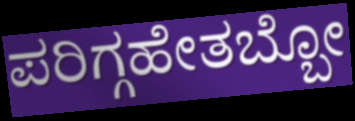
ಪರಿಗ್ಗಹೇತಬ್ಬೋ